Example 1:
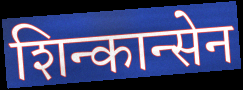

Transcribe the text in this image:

शिन्कान्सेन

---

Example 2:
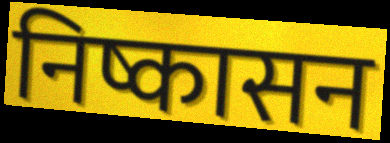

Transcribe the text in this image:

निष्कासन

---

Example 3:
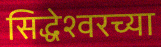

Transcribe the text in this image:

सिद्धेश्वरच्या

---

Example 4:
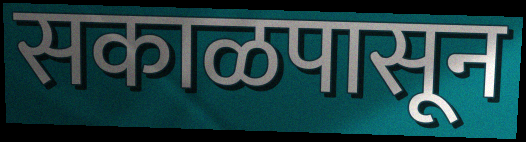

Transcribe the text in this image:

सकाळपासून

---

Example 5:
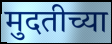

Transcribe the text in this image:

मुदतीच्या